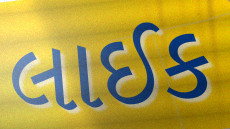
લાઈક